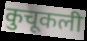
कुचूकली